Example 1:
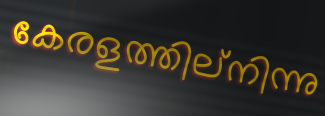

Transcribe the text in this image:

കേരളത്തില്നിന്നു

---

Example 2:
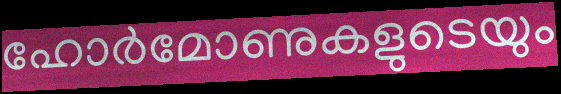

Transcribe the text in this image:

ഹോർമോണുകളുടെയും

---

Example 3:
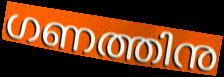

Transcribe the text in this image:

ഗണത്തിനു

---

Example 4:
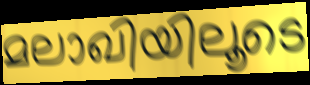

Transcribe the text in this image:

മലാഖിയിലൂടെ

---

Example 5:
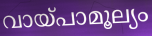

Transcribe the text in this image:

വായ്പാമൂല്യം